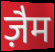
ज़ैम